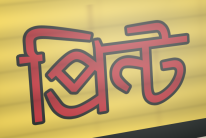
প্রিন্ট